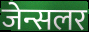
जेन्सलर